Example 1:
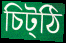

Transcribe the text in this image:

চিট্ঠি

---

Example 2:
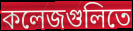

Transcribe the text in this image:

কলেজগুলিতে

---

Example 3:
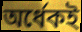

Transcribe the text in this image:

অর্ধেকই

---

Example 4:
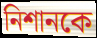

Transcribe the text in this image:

নিশানকে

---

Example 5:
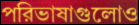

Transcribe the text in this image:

পরিভাষাগুলোও